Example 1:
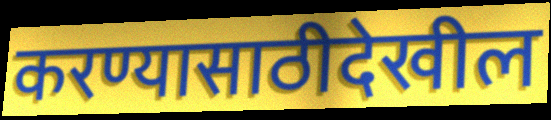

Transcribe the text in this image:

करण्यासाठीदेखील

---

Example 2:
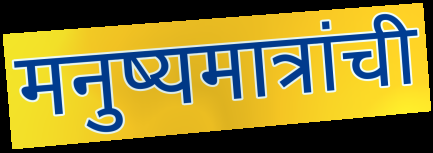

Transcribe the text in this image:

मनुष्यमात्रांची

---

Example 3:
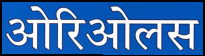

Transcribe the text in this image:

ओरिओलस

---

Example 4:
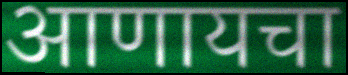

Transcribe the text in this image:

आणायचा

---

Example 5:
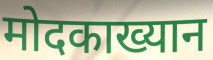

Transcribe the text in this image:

मोदकाख्यान